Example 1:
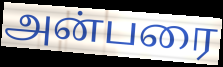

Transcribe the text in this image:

அன்பரை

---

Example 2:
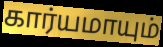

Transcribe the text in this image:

கார்யமாயும்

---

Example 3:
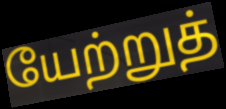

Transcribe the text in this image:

யேற்றுத்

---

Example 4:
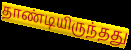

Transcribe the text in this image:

தாண்டியிருந்தது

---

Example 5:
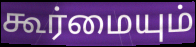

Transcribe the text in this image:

கூர்மையும்